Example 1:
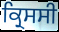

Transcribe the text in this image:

ਕ੍ਰਿਸਸੀ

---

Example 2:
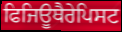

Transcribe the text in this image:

ਫਿਜਿਊਥੈਰੇਪਿਸਟ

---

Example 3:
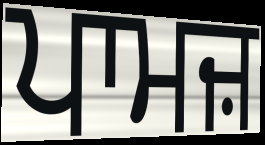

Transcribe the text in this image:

ਪਾਮਜ਼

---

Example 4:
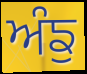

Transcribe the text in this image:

ਅੰਙੁ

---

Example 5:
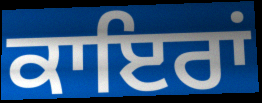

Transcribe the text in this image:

ਕਾਇਰਾਂ